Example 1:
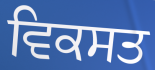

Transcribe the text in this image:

ਵਿਕਸਤ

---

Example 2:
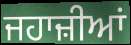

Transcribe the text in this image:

ਜਹਾਜ਼ੀਆਂ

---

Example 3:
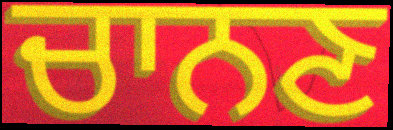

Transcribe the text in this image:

ਚਾਨਣ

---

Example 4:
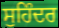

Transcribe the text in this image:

ਸੁਹਿੰਦਰ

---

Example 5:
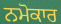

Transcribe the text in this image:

ਨਮੋਕਾਰ